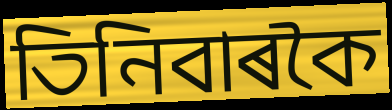
তিনিবাৰকৈ